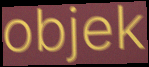
objek